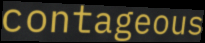
contageous